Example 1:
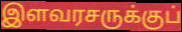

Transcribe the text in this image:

இளவரசருக்குப்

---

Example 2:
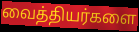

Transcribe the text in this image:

வைத்தியர்களை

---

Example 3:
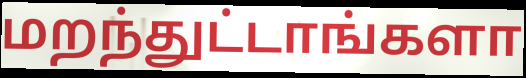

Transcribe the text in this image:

மறந்துட்டாங்களா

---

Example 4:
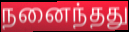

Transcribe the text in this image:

நனைந்தது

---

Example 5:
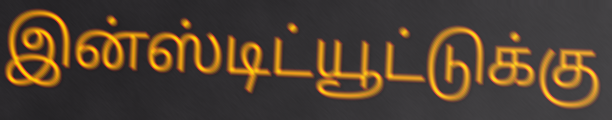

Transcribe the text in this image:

இன்ஸ்டிட்யூட்டுக்கு